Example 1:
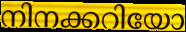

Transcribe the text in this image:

നിനക്കറിയോ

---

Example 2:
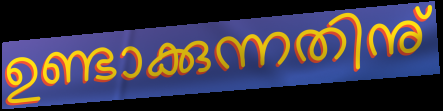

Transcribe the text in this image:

ഉണ്ടാക്കുന്നതിനു്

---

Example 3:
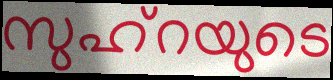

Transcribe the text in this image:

സുഹ്റയുടെ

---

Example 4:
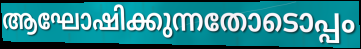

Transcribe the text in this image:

ആഘോഷിക്കുന്നതോടൊപ്പം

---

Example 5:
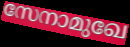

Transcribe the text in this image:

സേനാമുഖേ